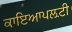
ਕਾਇਆਪਲ਼ਟੀ